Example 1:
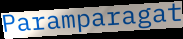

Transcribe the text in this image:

Paramparagat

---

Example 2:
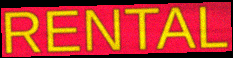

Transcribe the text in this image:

RENTAL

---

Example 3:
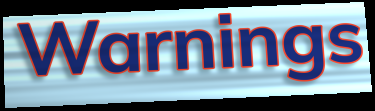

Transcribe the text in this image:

Warnings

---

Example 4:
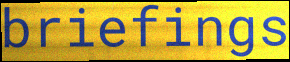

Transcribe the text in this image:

briefings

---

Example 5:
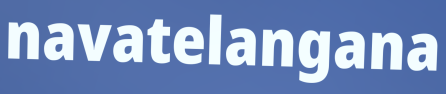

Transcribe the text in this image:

navatelangana